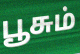
பூசும்